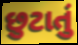
છુટાતું